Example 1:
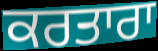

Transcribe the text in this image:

ਕਰਤਾਰਾ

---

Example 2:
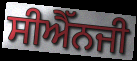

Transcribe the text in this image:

ਸੀਐੱਨਜੀ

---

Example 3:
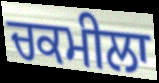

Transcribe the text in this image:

ਚਕਮੀਲਾ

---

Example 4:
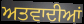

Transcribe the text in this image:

ਅਤਵਾਦੀਆਂ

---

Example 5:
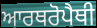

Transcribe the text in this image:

ਆਰਥਰੋਪੈਥੀ